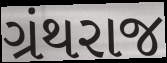
ગ્રંથરાજ